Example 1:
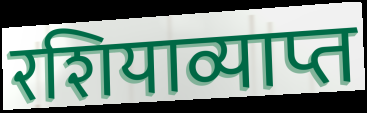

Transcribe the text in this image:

रशियाव्याप्त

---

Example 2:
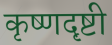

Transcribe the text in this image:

कृष्णदृष्टी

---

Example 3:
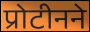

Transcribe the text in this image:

प्रोटीनने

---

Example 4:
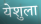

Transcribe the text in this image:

येशुला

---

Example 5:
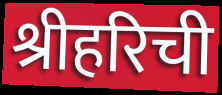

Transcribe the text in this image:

श्रीहरिची